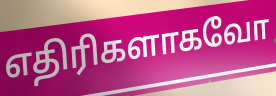
எதிரிகளாகவோ